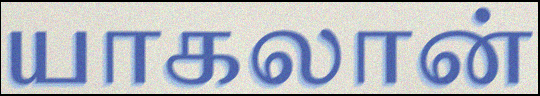
யாகலான்